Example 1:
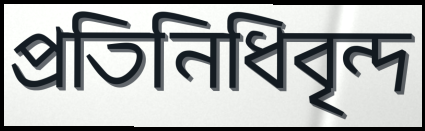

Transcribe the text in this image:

প্রতিনিধিবৃন্দ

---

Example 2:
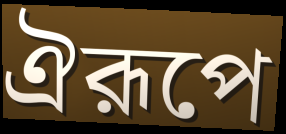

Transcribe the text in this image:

ঐরূপে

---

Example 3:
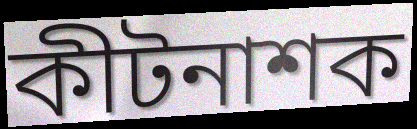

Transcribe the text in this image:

কীটনাশক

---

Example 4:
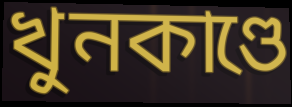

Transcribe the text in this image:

খুনকাণ্ডে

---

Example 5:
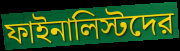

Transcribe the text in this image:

ফাইনালিস্টদের